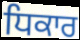
ਧਿਕਾਰ